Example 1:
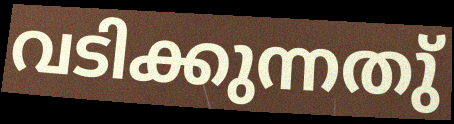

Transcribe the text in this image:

വടിക്കുന്നതു്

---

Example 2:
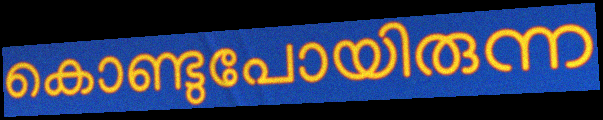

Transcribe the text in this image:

കൊണ്ടുപോയിരുന്ന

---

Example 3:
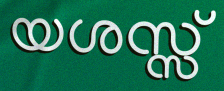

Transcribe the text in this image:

യശസ്സ്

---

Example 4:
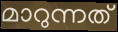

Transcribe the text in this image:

മാറുന്നത്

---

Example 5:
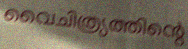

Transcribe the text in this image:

വൈചിത്ര്യത്തിന്റെ